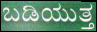
ಬಡಿಯುತ್ತ